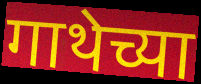
गाथेच्या